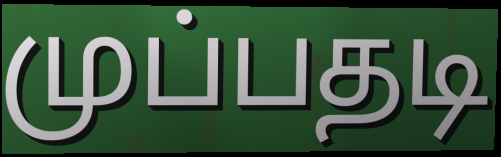
முப்பதடி